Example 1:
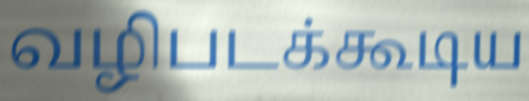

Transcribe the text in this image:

வழிபடக்கூடிய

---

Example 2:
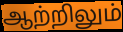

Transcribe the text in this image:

ஆற்றிலும்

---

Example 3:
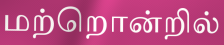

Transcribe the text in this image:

மற்றொன்றில்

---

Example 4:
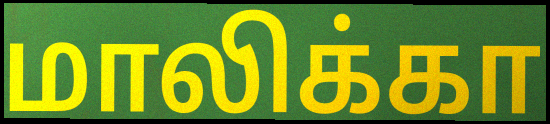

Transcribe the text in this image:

மாலிக்கா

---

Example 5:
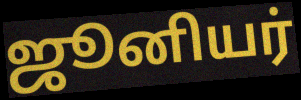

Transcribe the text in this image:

ஜூனியர்